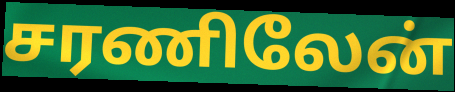
சரணிலேன்